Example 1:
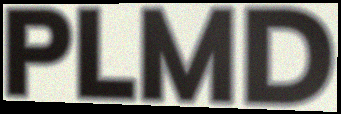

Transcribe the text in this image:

PLMD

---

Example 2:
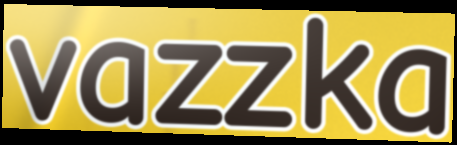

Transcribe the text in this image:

vazzka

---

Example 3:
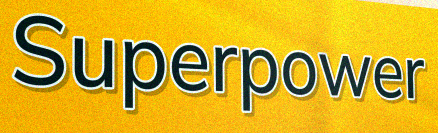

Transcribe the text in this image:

Superpower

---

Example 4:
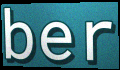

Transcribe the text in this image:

ber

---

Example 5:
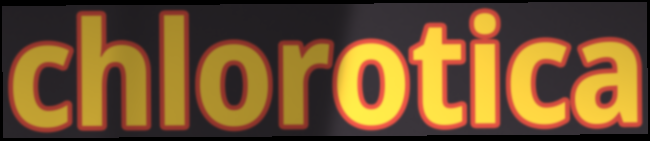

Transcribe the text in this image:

chlorotica